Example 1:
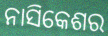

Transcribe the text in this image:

ନାସିକେଶର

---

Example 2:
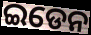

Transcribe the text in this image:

ଇଡେନ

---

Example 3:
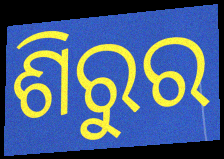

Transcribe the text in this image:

ଶିରୁର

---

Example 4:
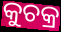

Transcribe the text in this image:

କୁଚକ୍ର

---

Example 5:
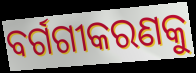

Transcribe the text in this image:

ବର୍ଗଗୀକରଣକୁ